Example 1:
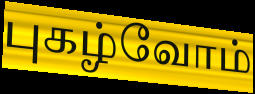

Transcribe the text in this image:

புகழ்வோம்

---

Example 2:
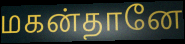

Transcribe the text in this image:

மகன்தானே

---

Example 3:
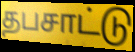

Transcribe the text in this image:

தபசாட்டு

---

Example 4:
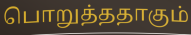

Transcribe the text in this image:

பொறுத்ததாகும்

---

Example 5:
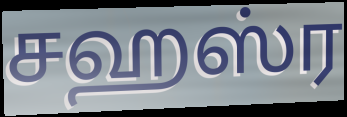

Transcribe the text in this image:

சஹஸ்ர